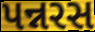
પન્નરસ